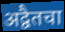
अद्वैतचा